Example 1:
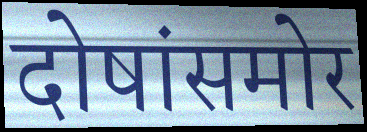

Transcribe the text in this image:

दोषांसमोर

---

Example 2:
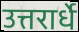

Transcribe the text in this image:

उत्तरार्धे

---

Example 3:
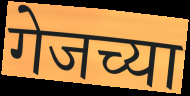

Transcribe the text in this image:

गेजच्या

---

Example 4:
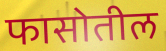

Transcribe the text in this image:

फासोतील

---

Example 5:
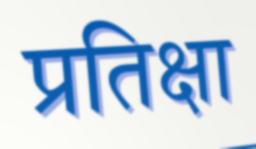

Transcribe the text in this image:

प्रतिक्षा